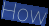
How